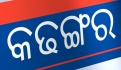
କଢଙ୍ଗର